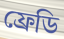
ফ্রেডি